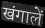
खंगालें